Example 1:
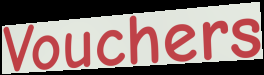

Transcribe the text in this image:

Vouchers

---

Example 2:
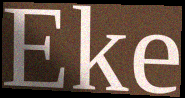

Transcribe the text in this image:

Eke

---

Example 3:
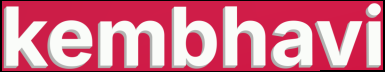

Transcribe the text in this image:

kembhavi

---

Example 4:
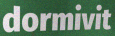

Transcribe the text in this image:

dormivit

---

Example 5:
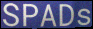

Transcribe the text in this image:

SPADs